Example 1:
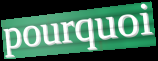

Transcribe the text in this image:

pourquoi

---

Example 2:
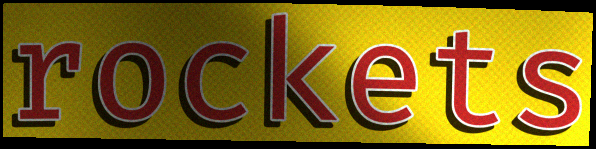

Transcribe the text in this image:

rockets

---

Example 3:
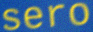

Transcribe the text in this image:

sero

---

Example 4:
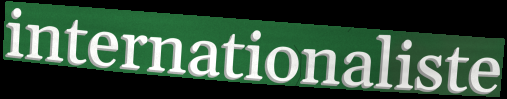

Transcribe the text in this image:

internationaliste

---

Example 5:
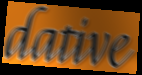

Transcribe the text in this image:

dative